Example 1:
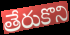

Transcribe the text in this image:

తేరుకొని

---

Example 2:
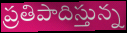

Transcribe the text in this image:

ప్రతిపాదిస్తున్న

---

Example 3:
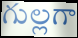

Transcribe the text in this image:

గుల్లగా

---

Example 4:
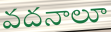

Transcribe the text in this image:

వదనాలూ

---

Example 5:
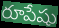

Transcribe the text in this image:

రూపేషు